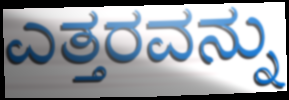
ಎತ್ತರವನ್ನು